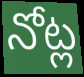
నోట్ల